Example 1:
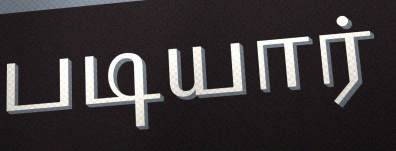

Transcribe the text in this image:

படியார்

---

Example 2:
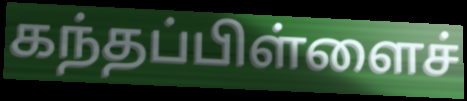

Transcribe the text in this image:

கந்தப்பிள்ளைச்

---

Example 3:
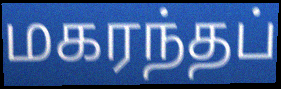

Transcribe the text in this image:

மகரந்தப்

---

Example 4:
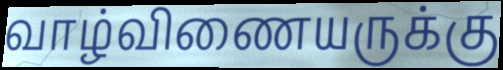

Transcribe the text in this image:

வாழ்விணையருக்கு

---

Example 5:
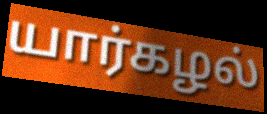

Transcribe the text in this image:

யார்கழல்